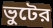
ভুটের